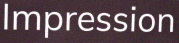
Impression